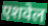
एशवेल